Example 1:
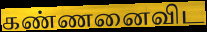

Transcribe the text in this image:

கண்ணனைவிட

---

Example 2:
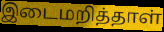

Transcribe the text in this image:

இடைமறித்தாள்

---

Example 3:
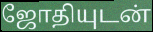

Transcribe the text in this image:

ஜோதியுடன்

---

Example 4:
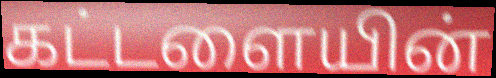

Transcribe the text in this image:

கட்டளையின்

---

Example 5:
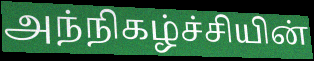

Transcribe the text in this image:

அந்நிகழ்ச்சியின்